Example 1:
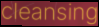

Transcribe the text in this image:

cleansing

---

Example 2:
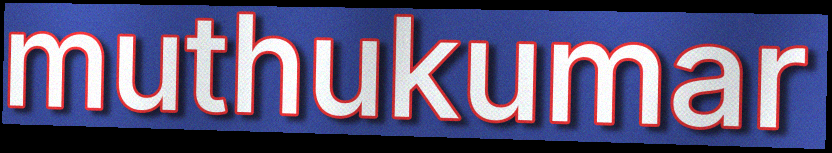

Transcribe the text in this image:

muthukumar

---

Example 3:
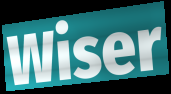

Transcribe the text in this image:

Wiser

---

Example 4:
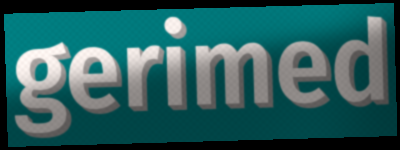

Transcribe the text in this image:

gerimed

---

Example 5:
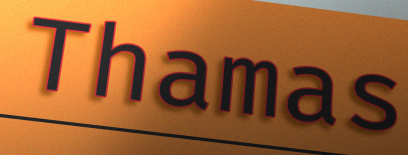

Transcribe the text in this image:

Thamas